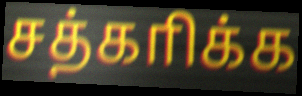
சத்கரிக்க